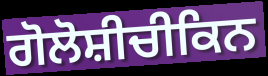
ਗੋਲੋਸ਼ੀਚੀਕਿਨ